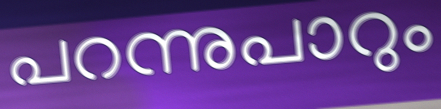
പറന്നുപാറും